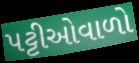
પટ્ટીઓવાળો